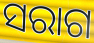
ସରାଗ